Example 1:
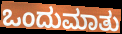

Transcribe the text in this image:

ಒಂದುಮಾತು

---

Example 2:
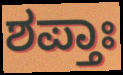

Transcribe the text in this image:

ಶಪ್ತಾಃ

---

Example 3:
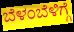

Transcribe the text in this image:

ಬೆಳಂಬೆಳಿಗ್ಗೆ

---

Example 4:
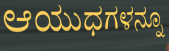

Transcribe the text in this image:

ಆಯುಧಗಳನ್ನೂ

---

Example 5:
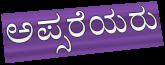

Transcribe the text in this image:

ಅಪ್ಸರೆಯರು